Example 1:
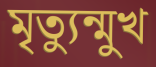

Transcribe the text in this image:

মৃত্যুন্মুখ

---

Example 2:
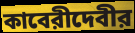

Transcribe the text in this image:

কাবেরীদেবীর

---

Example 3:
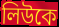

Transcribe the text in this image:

লিউকে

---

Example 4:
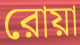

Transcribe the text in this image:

রোয়া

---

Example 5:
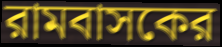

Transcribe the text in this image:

রামবাসকের